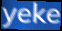
yeke